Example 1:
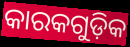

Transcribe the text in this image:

କାରକଗୁଡ଼ିକ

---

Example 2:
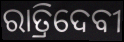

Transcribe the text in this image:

ରାତ୍ରିଦେବୀ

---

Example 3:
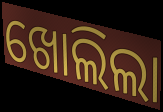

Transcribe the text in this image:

ଖୋଲିଲା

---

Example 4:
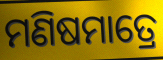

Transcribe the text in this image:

ମଣିଷମାତ୍ରେ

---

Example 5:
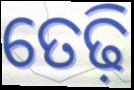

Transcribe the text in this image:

ତେଢ଼ି